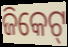
ଜିକେଟ୍